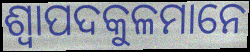
ଶ୍ୱାପଦକୁଳମାନେ